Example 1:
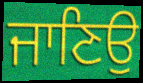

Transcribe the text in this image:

ਜਾਣਿਉ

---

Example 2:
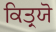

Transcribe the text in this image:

ਕਿਤ੍ਰਯੋ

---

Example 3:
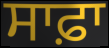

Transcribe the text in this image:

ਸਾਫ਼ਾ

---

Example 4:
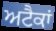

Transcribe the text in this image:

ਅਟੈਕਾਂ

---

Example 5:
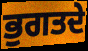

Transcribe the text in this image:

ਭੁਗਤਦੇ